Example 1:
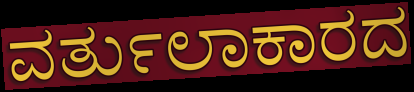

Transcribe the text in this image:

ವರ್ತುಲಾಕಾರದ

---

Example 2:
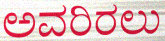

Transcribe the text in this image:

ಅವರಿರಲು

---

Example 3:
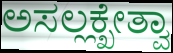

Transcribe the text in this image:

ಅಸಲ್ಲಕ್ಖೇತ್ವಾ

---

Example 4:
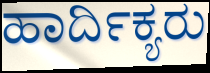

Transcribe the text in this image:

ಹಾರ್ದಿಕ್ಯರು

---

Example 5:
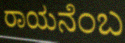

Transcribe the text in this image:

ರಾಯನೆಂಬ